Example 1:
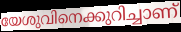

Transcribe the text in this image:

യേശുവിനെക്കുറിച്ചാണ്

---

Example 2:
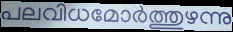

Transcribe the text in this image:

പലവിധമോർത്തുഴന്നു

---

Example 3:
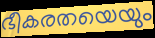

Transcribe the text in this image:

ഭീകരതയെയും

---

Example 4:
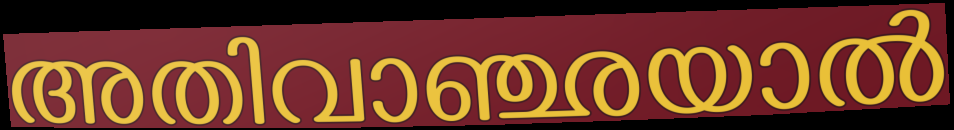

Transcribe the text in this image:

അതിവാഞ്ഛയാൽ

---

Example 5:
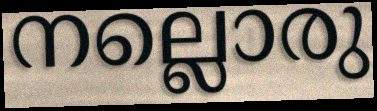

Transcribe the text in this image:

നല്ലൊരു